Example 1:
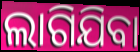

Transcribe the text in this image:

ଲାଗିଯିବା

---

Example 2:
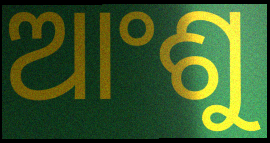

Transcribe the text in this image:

ଆଂଶୁ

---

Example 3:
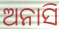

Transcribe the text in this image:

ଅନାସି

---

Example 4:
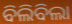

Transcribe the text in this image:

ବିଲିବିଲା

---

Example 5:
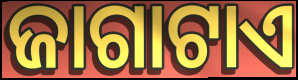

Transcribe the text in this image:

ଜାଗାଟାଏ